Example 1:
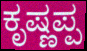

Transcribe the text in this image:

ಕೃಷ್ಣಪ್ಪ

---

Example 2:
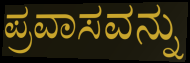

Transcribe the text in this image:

ಪ್ರವಾಸವನ್ನು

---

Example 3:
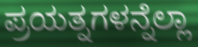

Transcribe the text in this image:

ಪ್ರಯತ್ನಗಳನ್ನೆಲ್ಲಾ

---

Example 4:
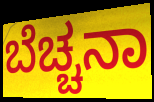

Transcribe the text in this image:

ಬೆಚ್ಚನಾ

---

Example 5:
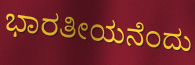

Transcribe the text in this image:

ಭಾರತೀಯನೆಂದು